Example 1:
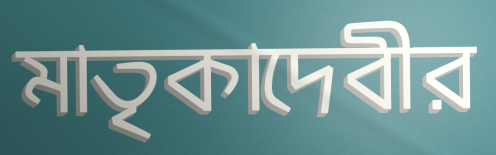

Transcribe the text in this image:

মাতৃকাদেবীর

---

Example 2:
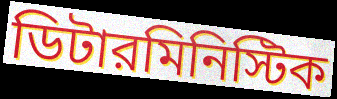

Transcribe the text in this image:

ডিটারমিনিস্টিক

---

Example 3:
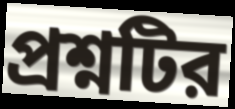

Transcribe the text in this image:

প্রশ্নটির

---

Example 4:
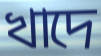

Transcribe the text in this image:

খাদে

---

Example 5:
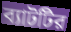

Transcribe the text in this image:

ব্যাটটির